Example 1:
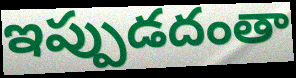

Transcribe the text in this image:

ఇప్పుడదంతా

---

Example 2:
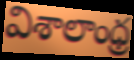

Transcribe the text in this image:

విశాలాంధ్ర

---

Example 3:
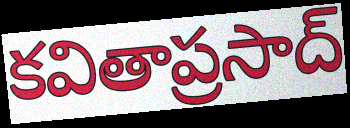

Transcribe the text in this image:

కవితాప్రసాద్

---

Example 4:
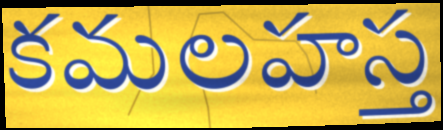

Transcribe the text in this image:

కమలహస్త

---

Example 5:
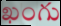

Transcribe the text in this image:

ఖంగు